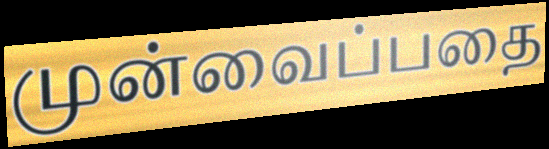
முன்வைப்பதை